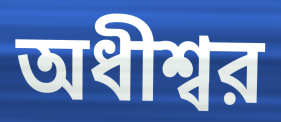
অধীশ্বর